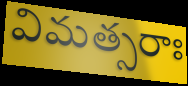
విమత్సరాః